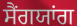
ਸੈਂਗਯਾਂਗ